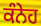
ਕੰਨੇਹ